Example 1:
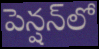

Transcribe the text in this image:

పెన్షన్‌లో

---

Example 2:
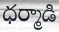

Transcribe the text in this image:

ధర్మాడి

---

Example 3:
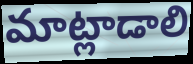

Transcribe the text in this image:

మాట్లాడాలి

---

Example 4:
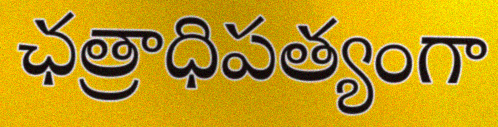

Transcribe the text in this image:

ఛత్రాధిపత్యంగా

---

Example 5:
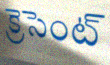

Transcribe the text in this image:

క్రెసెంట్